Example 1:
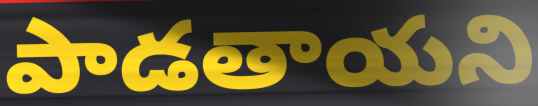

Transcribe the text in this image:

పాడతాయని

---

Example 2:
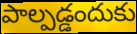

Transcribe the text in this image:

పాల్పడ్డందుకు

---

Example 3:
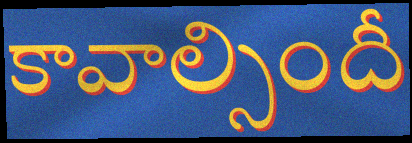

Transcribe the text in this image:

కావాల్సిందీ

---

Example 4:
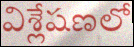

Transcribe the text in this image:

విశ్లేషణలో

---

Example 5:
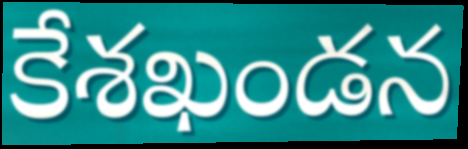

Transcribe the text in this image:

కేశఖండన